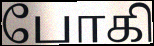
போகி